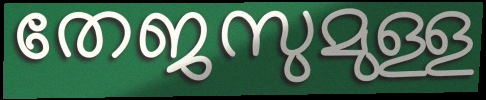
തേജസുമുള്ള